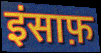
इंसाफ़